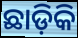
ଛାଡ଼ିକି